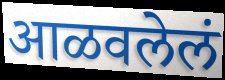
आळवलेलं